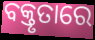
ବକ୍ତୃତାରେ